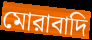
মোরাবাদি